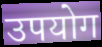
उपयोग